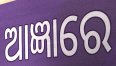
ଆଜ୍ଞାରେ